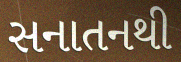
સનાતનથી